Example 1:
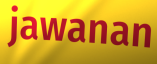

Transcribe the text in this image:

jawanan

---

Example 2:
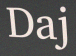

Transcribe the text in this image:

Daj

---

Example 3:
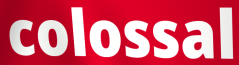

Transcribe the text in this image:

colossal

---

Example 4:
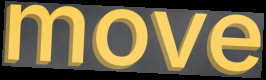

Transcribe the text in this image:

move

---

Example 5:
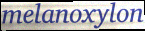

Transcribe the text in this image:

melanoxylon